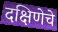
दक्षिणेचे